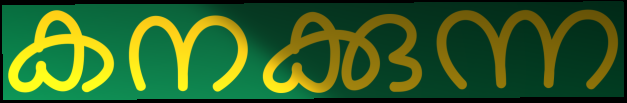
കനക്കുന്ന